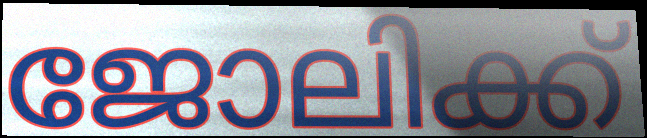
ജോലിക്ക്